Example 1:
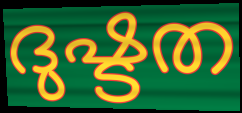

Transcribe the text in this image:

ദുഷ്ടത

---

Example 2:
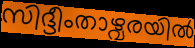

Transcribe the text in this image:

സിദ്ദീംതാഴ്വരയിൽ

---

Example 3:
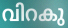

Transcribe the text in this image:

വിറകു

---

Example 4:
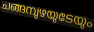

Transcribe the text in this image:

ചങ്ങമ്പുഴയുടേയും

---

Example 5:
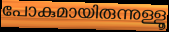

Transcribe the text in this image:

പോകുമായിരുന്നുള്ളൂ